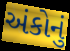
અંકોનું